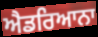
ਐਡਰਿਆਨਾ